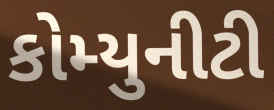
કોમ્યુનીટી